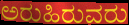
ಅರುಹಿರುವರು